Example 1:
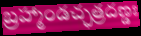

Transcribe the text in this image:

బ్రహ్మాండచ్ఛత్రదణ్డః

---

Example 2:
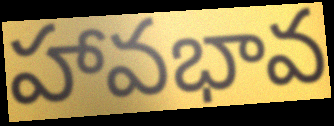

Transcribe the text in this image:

హావభావ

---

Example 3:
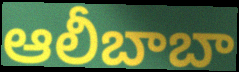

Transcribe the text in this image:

ఆలీబాబా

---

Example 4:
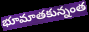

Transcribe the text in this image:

భూమాతకున్నంత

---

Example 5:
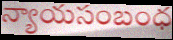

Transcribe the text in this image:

న్యాయసంబంధ